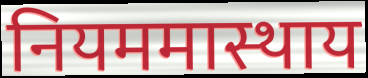
नियममास्थाय